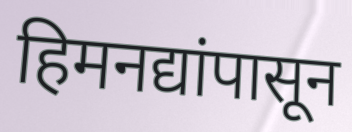
हिमनद्यांपासून